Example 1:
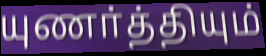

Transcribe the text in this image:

யுணர்த்தியும்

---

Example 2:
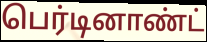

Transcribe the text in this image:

பெர்டினாண்ட்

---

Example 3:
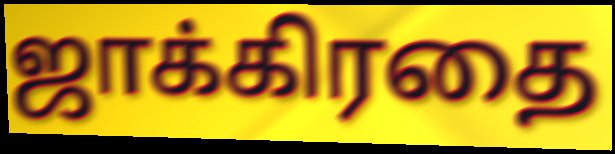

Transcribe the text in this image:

ஜாக்கிரதை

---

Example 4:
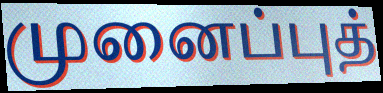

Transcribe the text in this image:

முனைப்புத்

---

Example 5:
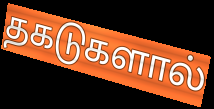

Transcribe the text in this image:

தகடுகளால்